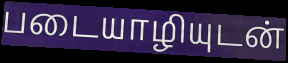
படையாழியுடன்